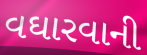
વઘારવાની